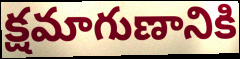
క్షమాగుణానికి